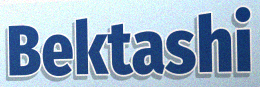
Bektashi